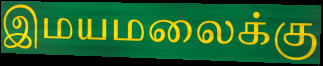
இமயமலைக்கு